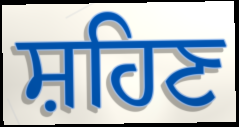
ਸ਼ਹਿਣ